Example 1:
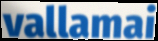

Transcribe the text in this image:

vallamai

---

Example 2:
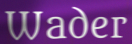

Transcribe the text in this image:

Wader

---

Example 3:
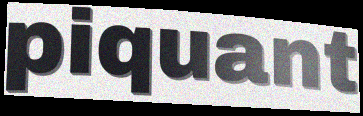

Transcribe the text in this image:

piquant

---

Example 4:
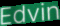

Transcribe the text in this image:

Edvin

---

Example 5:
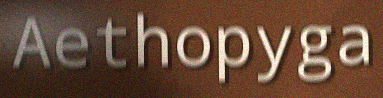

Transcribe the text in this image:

Aethopyga